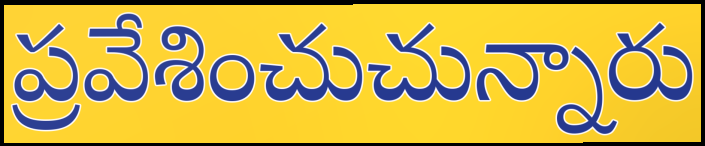
ప్రవేశించుచున్నారు